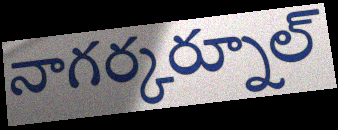
నాగర్కర్నూల్